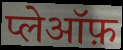
प्लेऑफ़